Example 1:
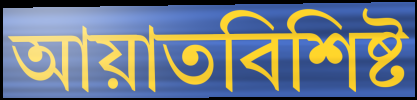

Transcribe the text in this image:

আয়াতবিশিষ্ট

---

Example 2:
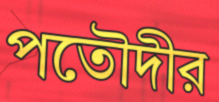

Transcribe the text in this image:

পতৌদীর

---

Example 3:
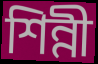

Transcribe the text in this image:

শিন্নী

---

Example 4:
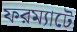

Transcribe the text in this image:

ফরম্যাটে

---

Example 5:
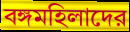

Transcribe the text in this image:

বঙ্গমহিলাদের